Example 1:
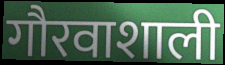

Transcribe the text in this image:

गौरवाशाली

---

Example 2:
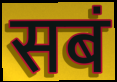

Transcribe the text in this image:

सबं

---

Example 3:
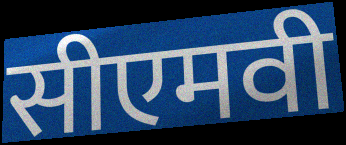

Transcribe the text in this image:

सीएमवी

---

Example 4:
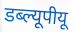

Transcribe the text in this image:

डब्ल्यूपीयू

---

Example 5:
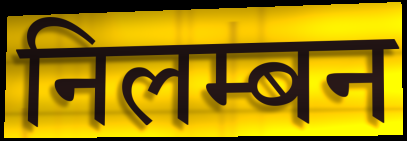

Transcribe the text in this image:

निलम्‍बन